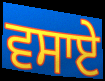
ਵਸਾਏ